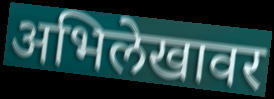
अभिलेखावर